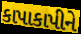
કાપાકાપીને